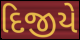
દિજીયે